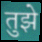
तुझे